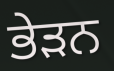
ਭੇੜਨ